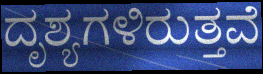
ದೃಶ್ಯಗಳಿರುತ್ತವೆ